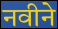
नवीने